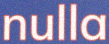
nulla